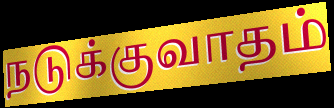
நடுக்குவாதம்